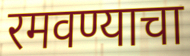
रमवण्याचा